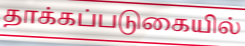
தாக்கப்படுகையில்